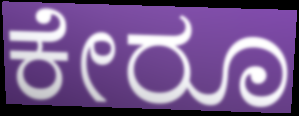
ಕೇರೂ